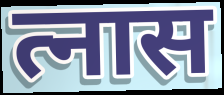
त्नास